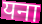
यना